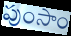
పుంసాం